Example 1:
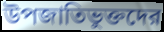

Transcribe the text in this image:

উপজাতিভুক্তদের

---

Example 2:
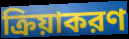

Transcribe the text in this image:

ক্রিয়াকরণ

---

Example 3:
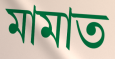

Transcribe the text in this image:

মামাত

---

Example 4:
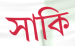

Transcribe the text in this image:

সাকি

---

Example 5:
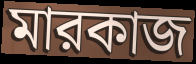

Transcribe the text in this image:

মারকাজ